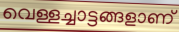
വെള്ളച്ചാട്ടങ്ങളാണ്